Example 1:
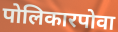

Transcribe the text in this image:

पोलिकारपोवा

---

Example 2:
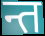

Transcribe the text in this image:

न्त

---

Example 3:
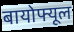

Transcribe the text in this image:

बायोफ्यूल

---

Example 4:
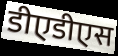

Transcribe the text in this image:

डीएडीएस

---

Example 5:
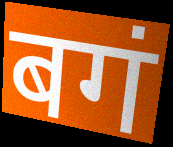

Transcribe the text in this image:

बगं